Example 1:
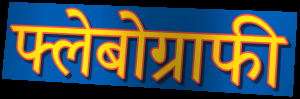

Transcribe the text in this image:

फ्लेबोग्राफी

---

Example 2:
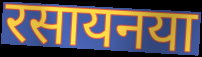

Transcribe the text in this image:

रसायनया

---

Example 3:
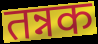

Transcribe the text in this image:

तन्नक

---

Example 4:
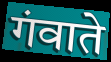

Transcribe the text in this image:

गंवाते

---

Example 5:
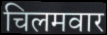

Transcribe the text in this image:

चिलमवार